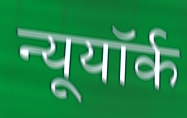
न्यूयॉर्क